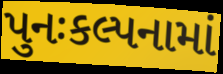
પુનઃકલ્પનામાં